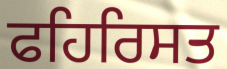
ਫਹਿਰਿਸਤ